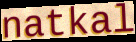
natkal